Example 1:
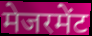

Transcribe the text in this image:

मेजरमेंट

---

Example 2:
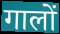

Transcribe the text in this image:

गालों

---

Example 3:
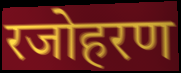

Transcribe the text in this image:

रजोहरण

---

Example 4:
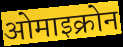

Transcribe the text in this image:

ओमाइक्रोन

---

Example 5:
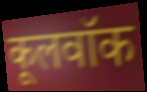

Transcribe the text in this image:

कूलवॉक